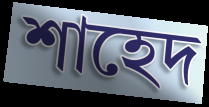
শাহেদ